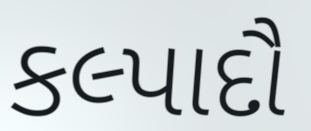
કલ્પાદૌ